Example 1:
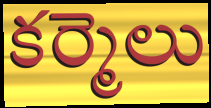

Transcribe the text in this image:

కర్మెలు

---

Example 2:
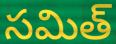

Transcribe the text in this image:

సమిత్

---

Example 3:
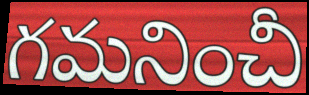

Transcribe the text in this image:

గమనించీ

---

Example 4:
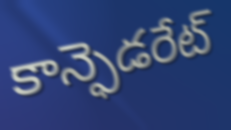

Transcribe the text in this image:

కాన్ఫెడరేట్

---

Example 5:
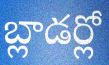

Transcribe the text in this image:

బ్లాడర్లో